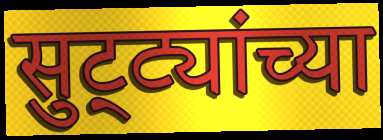
सुट्ट्यांच्या